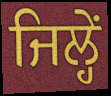
ਜਿਲ੍ਹੇਂ